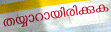
തയ്യാറായിരിക്കുക